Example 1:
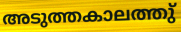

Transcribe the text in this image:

അടുത്തകാലത്തു്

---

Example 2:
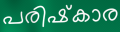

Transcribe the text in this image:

പരിഷ്‌കാര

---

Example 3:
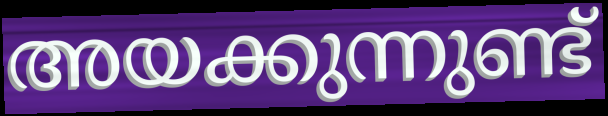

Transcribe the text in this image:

അയക്കുന്നുണ്ട്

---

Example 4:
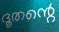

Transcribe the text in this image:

ദൂതന്റെ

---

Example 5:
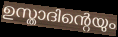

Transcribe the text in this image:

ഉസ്താദിന്റെയും